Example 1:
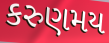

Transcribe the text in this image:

કરુણમય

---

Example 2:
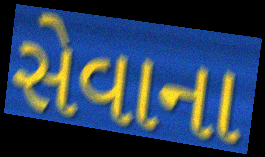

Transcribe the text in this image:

સેવાના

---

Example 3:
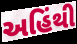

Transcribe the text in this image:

અહિંથી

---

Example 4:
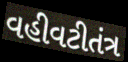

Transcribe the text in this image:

વહીવટીતંત્ર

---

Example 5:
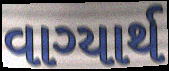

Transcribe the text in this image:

વાગ્યાર્થ